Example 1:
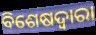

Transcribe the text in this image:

ବିଶେଷଦ୍ଵାରା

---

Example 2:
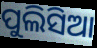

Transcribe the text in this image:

ପୁଲିସିଆ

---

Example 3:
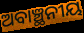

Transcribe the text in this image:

ଅବାଞ୍ଛନୀୟ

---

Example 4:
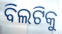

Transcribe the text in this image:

ବିଲଟିକୁ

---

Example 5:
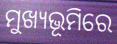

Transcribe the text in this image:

ମୁଖ୍ୟଭୂମିରେ